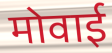
मोवाई